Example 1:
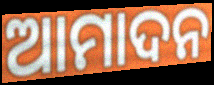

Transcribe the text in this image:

ଆମାଦନ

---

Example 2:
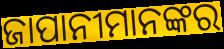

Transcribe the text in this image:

ଜାପାନୀମାନଙ୍କର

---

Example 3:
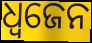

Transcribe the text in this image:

ଧ୍ଵଜେନ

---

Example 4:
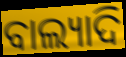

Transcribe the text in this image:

ବାଲ୍ୟାଦି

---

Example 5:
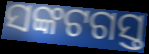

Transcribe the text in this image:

ସଙ୍କଟଗସ୍ତ